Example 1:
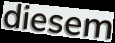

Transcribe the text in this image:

diesem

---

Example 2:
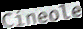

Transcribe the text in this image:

Cineole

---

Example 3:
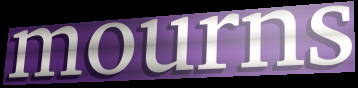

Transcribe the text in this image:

mourns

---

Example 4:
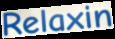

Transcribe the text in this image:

Relaxin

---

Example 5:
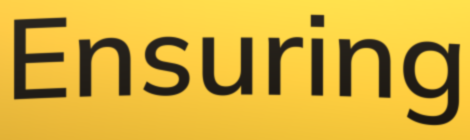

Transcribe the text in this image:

Ensuring